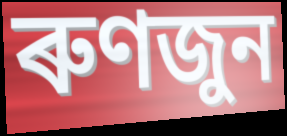
ৰুণজুন